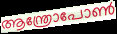
ആന്ത്രോപോൺ